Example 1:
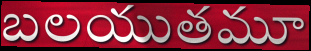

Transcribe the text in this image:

బలయుతమూ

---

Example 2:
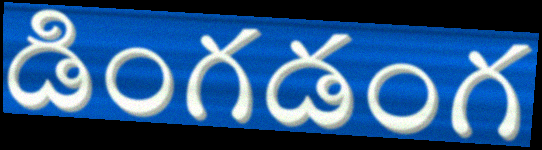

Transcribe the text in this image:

డింగడంగ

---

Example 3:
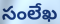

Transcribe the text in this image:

సంలేఖ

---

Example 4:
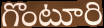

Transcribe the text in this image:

గొంటూరి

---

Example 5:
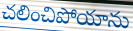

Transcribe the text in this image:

చలించిపోయాను